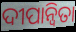
ଦୀପାନ୍ୱିତା